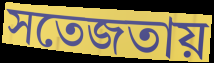
সতেজতায়